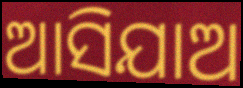
ଆସିଯାଅ